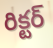
రిక్టర్